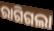
ରାଗିଗଲା